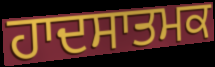
ਹਾਦਸਾਤਮਕ